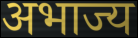
अभाज्य